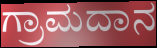
ಗ್ರಾಮದಾನ